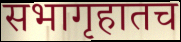
सभागृहातच